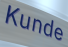
Kunde